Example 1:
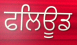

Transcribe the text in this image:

ਫਲਿਊਡ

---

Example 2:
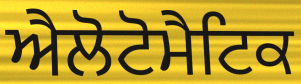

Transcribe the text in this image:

ਐਲੋਟੋਮੈਟਿਕ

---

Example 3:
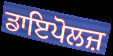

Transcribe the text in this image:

ਡਾਇਪੋਲਜ਼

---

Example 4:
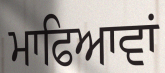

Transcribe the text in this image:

ਮਾਫਿਆਵਾਂ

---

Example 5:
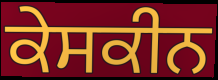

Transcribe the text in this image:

ਕੇਸਕੀਨ